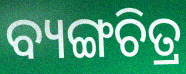
ବ୍ୟଙ୍ଗଚିତ୍ର